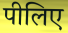
पीलिए